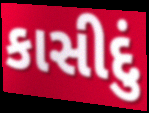
કાસીદું